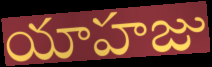
యాహజు